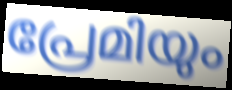
പ്രേമിയും